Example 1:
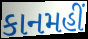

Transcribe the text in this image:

કાનમહીં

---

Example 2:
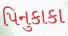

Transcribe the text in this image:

પિનુકાકા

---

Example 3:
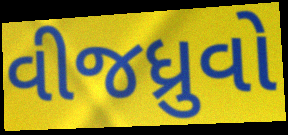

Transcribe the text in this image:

વીજધ્રુવો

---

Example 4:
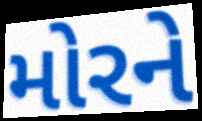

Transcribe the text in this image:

મોરને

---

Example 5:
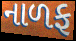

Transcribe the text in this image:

નાળફ